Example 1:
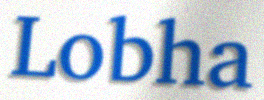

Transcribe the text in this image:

Lobha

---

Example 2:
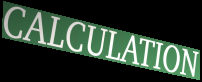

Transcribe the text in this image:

CALCULATION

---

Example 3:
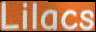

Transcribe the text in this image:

Lilacs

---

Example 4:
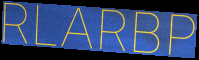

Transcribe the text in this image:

RLARBP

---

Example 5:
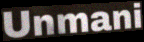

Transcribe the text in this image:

Unmani